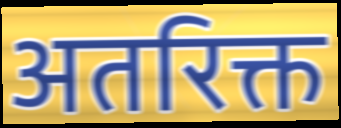
अतरिक्त